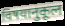
विषयानुकूल